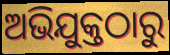
ଅଭିଯୁକ୍ତଠାରୁ